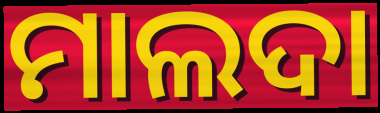
ମାଲଦା